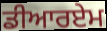
ਡੀਆਰਏਮ